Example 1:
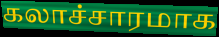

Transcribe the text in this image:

கலாச்சாரமாக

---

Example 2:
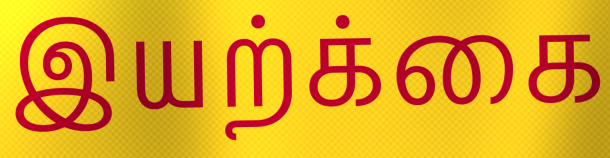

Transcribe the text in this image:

இயற்க்கை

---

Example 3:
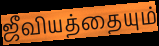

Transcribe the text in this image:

ஜீவியத்தையும்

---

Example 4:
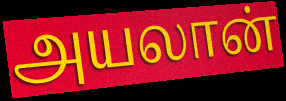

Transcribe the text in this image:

அயலான்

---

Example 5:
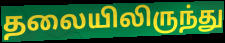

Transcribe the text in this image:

தலையிலிருந்து